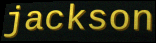
jackson